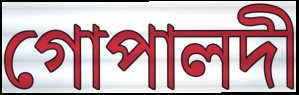
গোপালদী